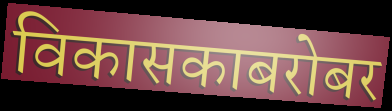
विकासकाबरोबर